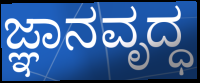
ಜ್ಞಾನವೃದ್ಧ